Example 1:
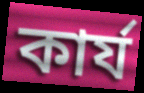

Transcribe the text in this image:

কার্য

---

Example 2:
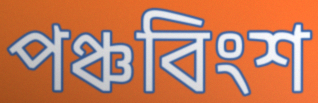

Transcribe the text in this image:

পঞ্চবিংশ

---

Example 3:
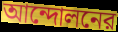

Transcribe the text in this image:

আন্দোলনের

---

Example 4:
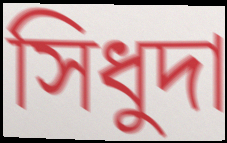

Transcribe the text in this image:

সিধুদা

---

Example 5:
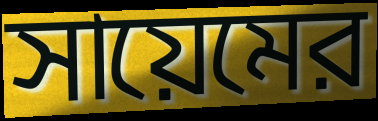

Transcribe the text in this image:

সায়েমের